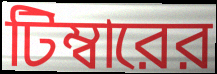
টিম্বারের